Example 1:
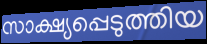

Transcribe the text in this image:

സാക്ഷ്യപ്പെടുത്തിയ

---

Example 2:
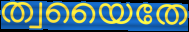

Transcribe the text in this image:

ത്വയൈതേ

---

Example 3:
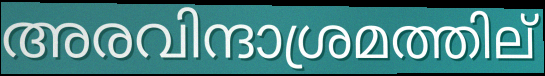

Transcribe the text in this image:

അരവിന്ദാശ്രമത്തില്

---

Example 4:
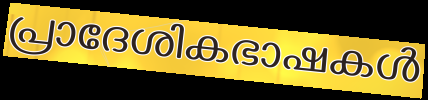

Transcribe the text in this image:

പ്രാദേശികഭാഷകൾ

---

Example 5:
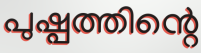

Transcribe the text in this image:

പുഷ്പത്തിന്റെ